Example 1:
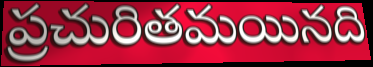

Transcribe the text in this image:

ప్రచురితమయినది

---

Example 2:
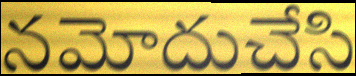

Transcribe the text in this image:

నమోదుచేసి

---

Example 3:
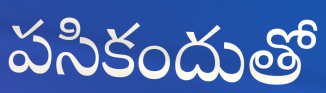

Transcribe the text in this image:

పసికందుతో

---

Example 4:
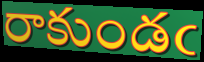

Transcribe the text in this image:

రాకుండఁ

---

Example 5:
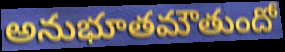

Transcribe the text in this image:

అనుభూతమౌతుందో